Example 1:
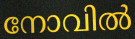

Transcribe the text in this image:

നോവിൽ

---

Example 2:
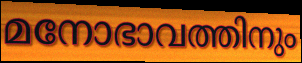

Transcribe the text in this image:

മനോഭാവത്തിനും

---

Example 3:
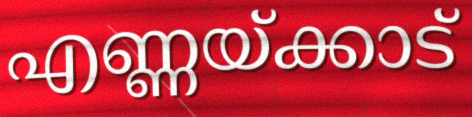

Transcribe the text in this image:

എണ്ണയ്ക്കാട്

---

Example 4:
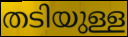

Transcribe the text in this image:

തടിയുള്ള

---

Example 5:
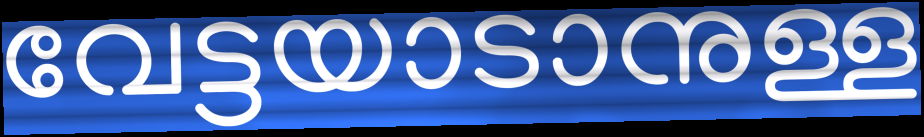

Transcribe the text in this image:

വേട്ടയാടാനുള്ള